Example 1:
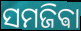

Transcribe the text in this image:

ସମଜିଵା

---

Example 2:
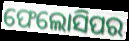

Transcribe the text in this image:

ଫେଲୋସିପର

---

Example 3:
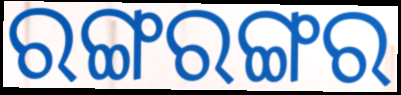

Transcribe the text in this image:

ରଙ୍ଗରଙ୍ଗର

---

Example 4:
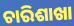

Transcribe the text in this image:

ଚାରିଶାଖା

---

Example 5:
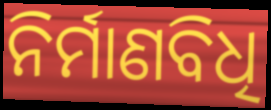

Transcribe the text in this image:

ନିର୍ମାଣବିଧି